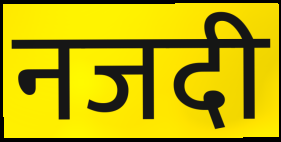
नजदी